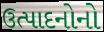
ઉત્પાદનોનો